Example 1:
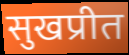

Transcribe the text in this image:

सुखप्रीत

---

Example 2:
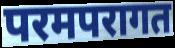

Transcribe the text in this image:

परमपरागत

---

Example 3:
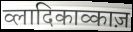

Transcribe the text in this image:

व्लादिकाव्काज़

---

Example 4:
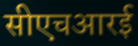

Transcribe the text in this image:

सीएचआरई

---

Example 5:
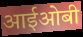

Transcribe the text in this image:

आईओबी